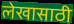
लेखासाठी